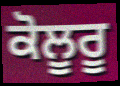
ਕੋਲੂਰੂ